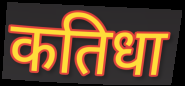
कतिधा